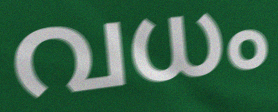
വധം